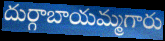
దుర్గాబాయమ్మగారు